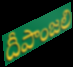
దీపాంజలి